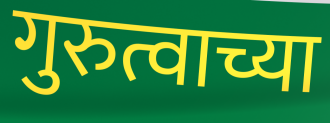
गुरुत्वाच्या